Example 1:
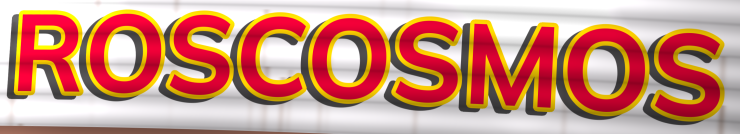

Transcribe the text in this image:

ROSCOSMOS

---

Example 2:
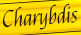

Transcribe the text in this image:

Charybdis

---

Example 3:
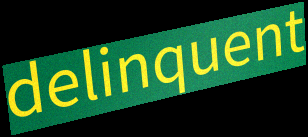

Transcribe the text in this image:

delinquent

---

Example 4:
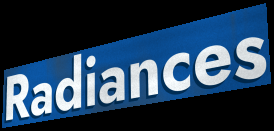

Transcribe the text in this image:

Radiances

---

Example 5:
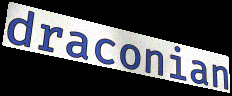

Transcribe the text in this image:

draconian